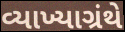
વ્યાખ્યાગ્રંથે